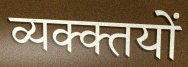
व्यक्क्तयों